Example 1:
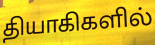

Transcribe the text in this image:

தியாகிகளில்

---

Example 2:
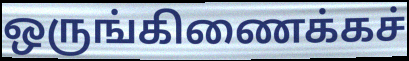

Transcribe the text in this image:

ஒருங்கிணைக்கச்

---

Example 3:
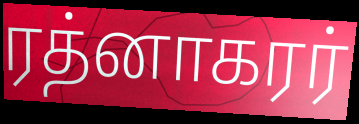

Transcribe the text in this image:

ரத்னாகரர்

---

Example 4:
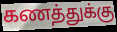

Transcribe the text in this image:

கணத்துக்கு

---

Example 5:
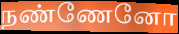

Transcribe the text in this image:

நண்ணேனோ